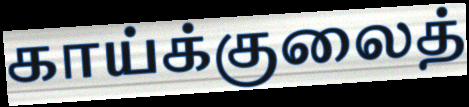
காய்க்குலைத்